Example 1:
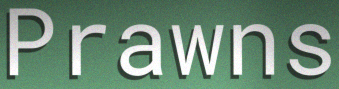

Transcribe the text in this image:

Prawns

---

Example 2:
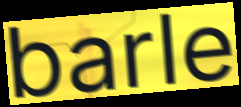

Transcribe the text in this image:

barle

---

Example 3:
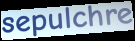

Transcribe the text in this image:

sepulchre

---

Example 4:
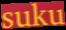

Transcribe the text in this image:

suku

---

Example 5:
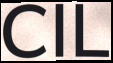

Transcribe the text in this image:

CIL